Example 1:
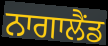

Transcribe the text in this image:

ਨਾਗਾਲੈਂਡ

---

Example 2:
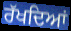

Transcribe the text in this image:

ਰੱਖਦਿਆਂ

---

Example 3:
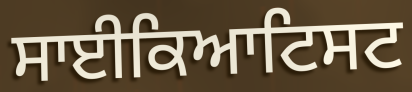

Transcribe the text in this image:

ਸਾਈਕਿਆਟਿਸਟ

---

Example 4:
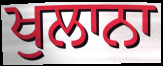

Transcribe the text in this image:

ਖੁਲਾਨਾ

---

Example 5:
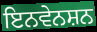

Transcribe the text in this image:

ਇਨਵੇਨਸ਼ਨ